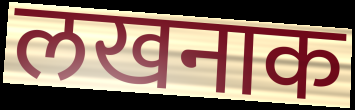
लखनाक